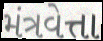
મંત્રવેત્તા